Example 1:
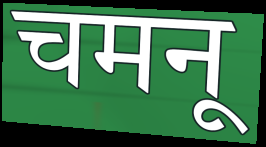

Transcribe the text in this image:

चमनू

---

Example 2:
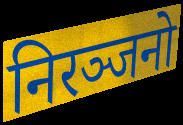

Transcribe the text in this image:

निरञ्जनो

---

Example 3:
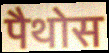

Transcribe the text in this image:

पैथोस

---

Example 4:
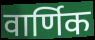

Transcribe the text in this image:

वार्णिक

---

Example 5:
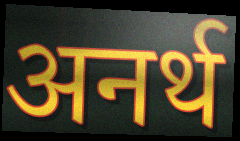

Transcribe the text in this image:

अनर्थ